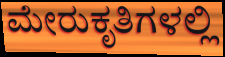
ಮೇರುಕೃತಿಗಳಲ್ಲಿ